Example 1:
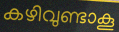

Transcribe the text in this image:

കഴിവുണ്ടാകൂ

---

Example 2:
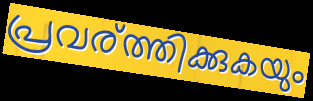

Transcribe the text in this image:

പ്രവര്ത്തിക്കുകയും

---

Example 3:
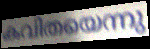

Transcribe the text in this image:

കവിതയെന്നു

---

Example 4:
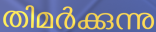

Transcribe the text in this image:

തിമർക്കുന്നു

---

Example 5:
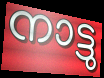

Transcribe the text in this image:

നാട്ടു